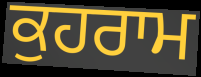
ਕੁਹਰਾਮ